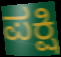
ಪಕ್ಷಿ